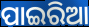
ପାଇରିଆ